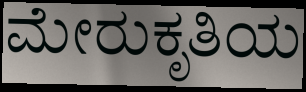
ಮೇರುಕೃತಿಯ